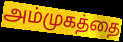
அம்முகத்தை